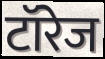
टॉरेज